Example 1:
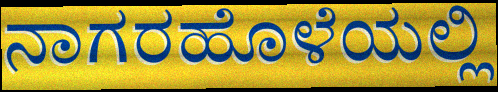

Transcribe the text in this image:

ನಾಗರಹೊಳೆಯಲ್ಲಿ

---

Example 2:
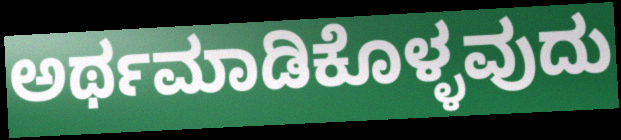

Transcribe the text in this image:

ಅರ್ಥಮಾಡಿಕೊಳ್ಳವುದು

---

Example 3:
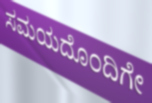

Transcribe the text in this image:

ಸಮಯದೊಂದಿಗೇ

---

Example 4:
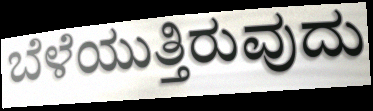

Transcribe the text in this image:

ಬೆಳೆಯುತ್ತಿರುವುದು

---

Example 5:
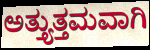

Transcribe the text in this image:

ಅತ್ತ್ಯುತ್ತಮವಾಗಿ